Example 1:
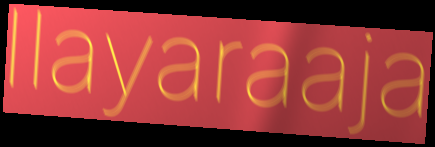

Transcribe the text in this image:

Ilayaraaja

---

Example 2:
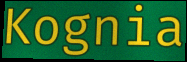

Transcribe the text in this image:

Kognia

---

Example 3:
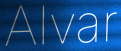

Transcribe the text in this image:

Alvar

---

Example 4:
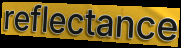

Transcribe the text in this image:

reflectance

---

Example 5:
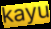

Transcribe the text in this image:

kayu